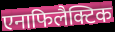
एनाफिलैक्टिक